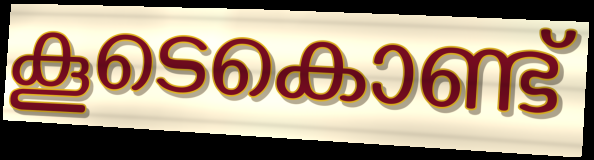
കൂടെകൊണ്ട്